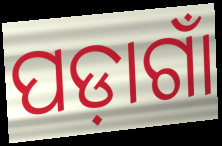
ପଡ଼ାଗାଁ